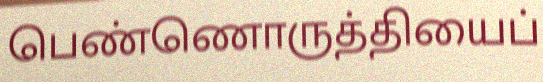
பெண்ணொருத்தியைப்